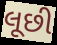
લૂછી